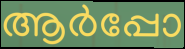
ആർപ്പോ